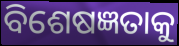
ବିଶେଷଜ୍ଞତାକୁ